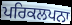
ਪਰਿਕਲਪਨਾ